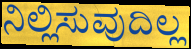
ನಿಲ್ಲಿಸುವುದಿಲ್ಲ